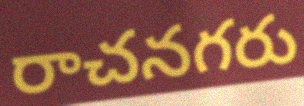
రాచనగరు